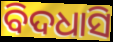
ବିଦଧାସି